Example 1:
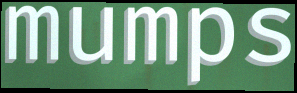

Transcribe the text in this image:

mumps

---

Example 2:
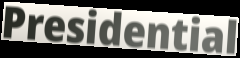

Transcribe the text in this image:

Presidential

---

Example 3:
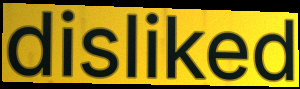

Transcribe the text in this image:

disliked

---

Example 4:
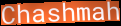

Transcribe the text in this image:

Chashmah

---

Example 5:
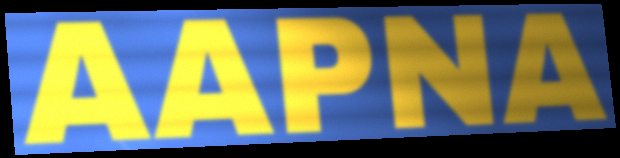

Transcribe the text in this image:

AAPNA